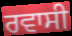
ਰਵਾਸੀ